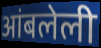
आंबलेली